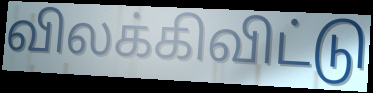
விலக்கிவிட்டு